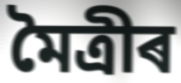
মৈত্ৰীৰ